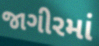
જાગીરમાં